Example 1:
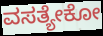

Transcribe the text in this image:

ವಸತ್ಯೇಕೋ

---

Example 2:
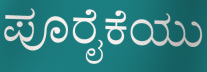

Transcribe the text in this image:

ಪೂರೈಕೆಯು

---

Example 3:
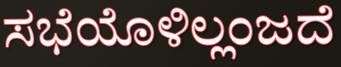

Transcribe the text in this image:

ಸಭೆಯೊಳಿಲ್ಲಂಜದೆ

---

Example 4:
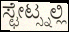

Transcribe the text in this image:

ಸ್ಟೇಟ್ಸ್ನಲ್ಲಿ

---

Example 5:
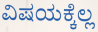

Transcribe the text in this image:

ವಿಷಯಕ್ಕೆಲ್ಲ